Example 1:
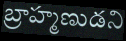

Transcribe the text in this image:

బ్రాహ్మణుడని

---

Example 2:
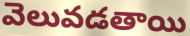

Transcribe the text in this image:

వెలువడతాయి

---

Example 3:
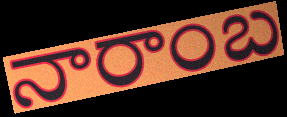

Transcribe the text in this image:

నారాంబ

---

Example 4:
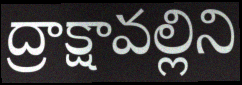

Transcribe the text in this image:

ద్రాక్షావల్లిని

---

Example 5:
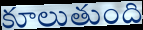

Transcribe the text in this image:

కూలుతుంది